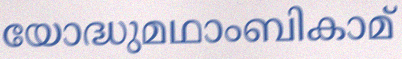
യോദ്ധുമഥാംബികാമ്